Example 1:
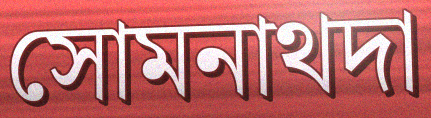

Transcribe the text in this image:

সোমনাথদা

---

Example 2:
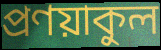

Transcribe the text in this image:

প্রণয়াকুল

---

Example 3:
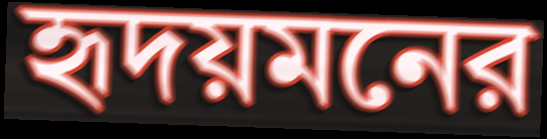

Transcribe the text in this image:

হৃদয়মনের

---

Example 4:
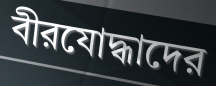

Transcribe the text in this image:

বীরযোদ্ধাদের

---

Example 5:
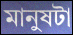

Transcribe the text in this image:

মানুষটা